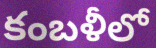
కంబళీలో